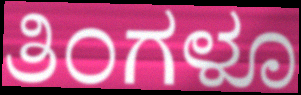
ತಿಂಗಳೂ